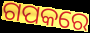
ଗପକରେ